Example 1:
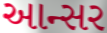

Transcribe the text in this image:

આન્સર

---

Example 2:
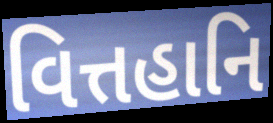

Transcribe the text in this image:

વિત્તહાનિ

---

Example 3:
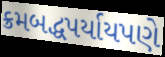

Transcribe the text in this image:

ક્રમબદ્ધપર્યાયપણે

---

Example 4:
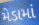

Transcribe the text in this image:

મેડામાં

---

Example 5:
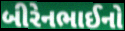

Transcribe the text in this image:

બીરેનભાઈનો